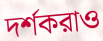
দর্শকরাও